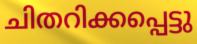
ചിതറിക്കപ്പെട്ടു